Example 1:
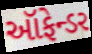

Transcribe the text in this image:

ઑફેન્ડર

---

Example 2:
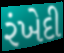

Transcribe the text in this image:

રંખેદી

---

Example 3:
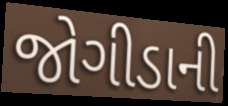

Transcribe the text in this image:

જોગીડાની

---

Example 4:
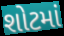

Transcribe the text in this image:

શોટમાં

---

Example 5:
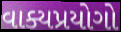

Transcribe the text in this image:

વાક્યપ્રયોગો